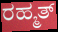
ರಹ್ಮತ್